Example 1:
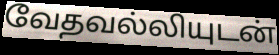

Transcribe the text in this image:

வேதவல்லியுடன்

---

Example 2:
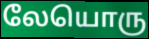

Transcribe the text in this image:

லேயொரு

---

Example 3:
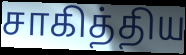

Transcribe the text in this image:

சாகித்திய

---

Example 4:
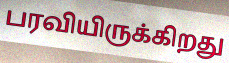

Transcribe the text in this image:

பரவியிருக்கிறது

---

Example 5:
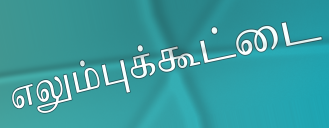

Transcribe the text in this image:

எலும்புக்கூட்டை